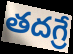
తదగ్రే